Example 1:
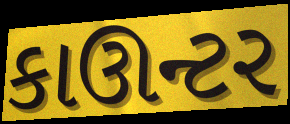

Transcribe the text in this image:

કાઊન્ટર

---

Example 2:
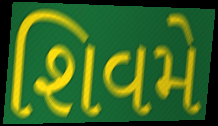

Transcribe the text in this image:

શિવમે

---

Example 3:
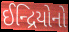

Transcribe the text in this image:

ઈન્દ્રિયોનો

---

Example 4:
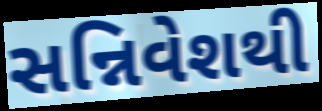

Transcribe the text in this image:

સન્નિવેશથી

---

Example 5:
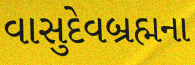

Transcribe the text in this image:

વાસુદેવબ્રહ્મના